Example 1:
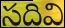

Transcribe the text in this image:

సదివి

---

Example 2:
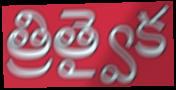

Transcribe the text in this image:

త్రిత్వైక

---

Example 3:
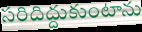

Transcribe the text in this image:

సరిదిద్దుకుంటాను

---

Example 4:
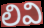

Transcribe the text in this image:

లివి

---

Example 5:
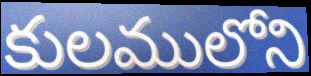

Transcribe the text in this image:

కులములోని